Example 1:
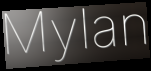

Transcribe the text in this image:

Mylan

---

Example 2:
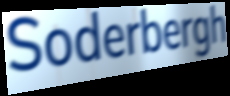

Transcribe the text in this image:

Soderbergh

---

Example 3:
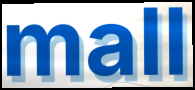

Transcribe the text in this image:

mall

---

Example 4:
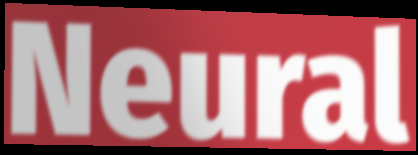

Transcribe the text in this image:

Neural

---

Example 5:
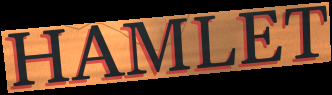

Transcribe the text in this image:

HAMLET